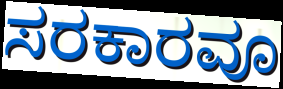
ಸರಕಾರವೂ